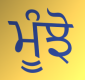
ਮੂੰਝੋ